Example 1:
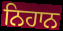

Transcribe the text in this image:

ਨਿਹਾਨ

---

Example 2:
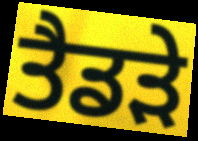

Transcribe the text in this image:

ਤੈਡੜੇ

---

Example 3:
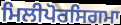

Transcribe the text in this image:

ਮਿਲੀਪੋਰਸਿਗਮਾ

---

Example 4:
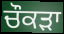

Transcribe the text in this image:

ਚੌਕੜਾ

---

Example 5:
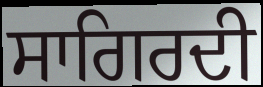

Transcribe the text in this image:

ਸਾਗਿਰਦੀ